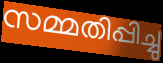
സമ്മതിപ്പിച്ചു